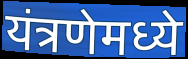
यंत्रणेमध्ये